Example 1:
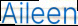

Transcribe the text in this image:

Aileen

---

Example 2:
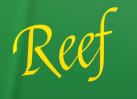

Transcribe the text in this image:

Reef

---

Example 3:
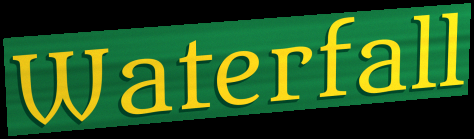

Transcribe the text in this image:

Waterfall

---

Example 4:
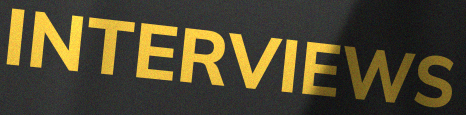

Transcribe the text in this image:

INTERVIEWS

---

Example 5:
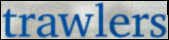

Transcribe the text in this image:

trawlers